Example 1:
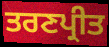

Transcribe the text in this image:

ਤਰਣਪ੍ਰੀਤ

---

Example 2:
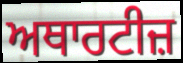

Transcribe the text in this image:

ਅਥਾਰਟੀਜ਼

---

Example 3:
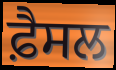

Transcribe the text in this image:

ਫ਼ੈਸਲ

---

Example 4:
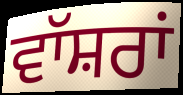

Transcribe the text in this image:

ਵਾੱਸ਼ਰਾਂ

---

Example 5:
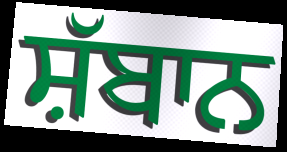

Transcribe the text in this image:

ਸ਼ੱਬਾਨ